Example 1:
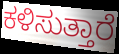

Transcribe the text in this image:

ಕಳಿಸುತ್ತಾರೆ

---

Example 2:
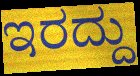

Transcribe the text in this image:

ಇರದ್ದು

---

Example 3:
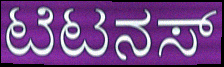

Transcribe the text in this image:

ಟೆಟನಸ್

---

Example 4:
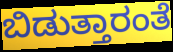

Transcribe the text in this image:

ಬಿಡುತ್ತಾರಂತೆ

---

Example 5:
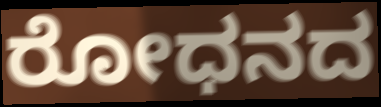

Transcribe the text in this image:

ರೋಧನದ